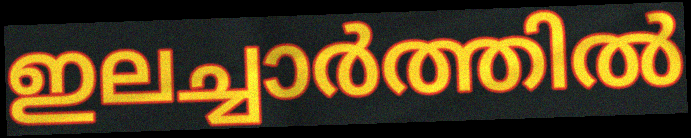
ഇലച്ചാർത്തിൽ